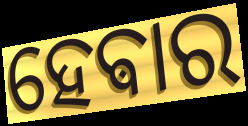
ହେଵାର